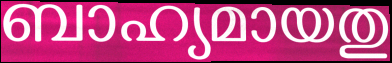
ബാഹ്യമായതു